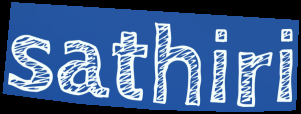
sathiri